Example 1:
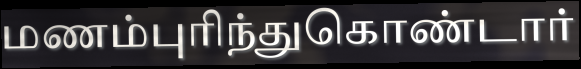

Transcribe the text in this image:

மணம்புரிந்துகொண்டார்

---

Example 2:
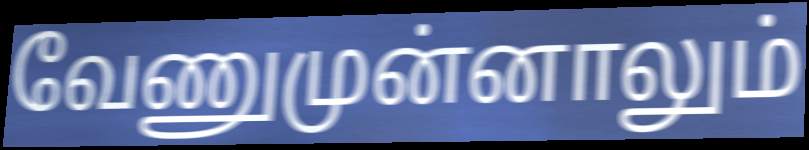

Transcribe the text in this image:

வேணுமுன்னாலும்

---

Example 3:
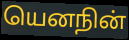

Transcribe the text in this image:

யெனநின்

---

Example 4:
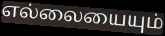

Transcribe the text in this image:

எல்லையையும்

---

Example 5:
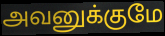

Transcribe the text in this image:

அவனுக்குமே